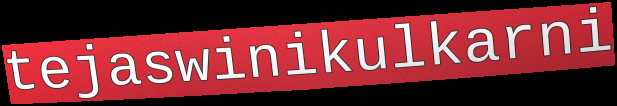
tejaswinikulkarni